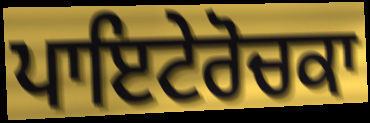
ਪਾਇਟੇਰੋਚਕਾ